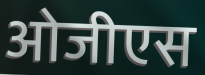
ओजीएस